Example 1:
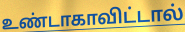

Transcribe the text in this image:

உண்டாகாவிட்டால்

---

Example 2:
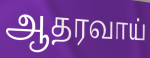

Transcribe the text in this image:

ஆதரவாய்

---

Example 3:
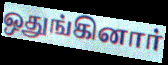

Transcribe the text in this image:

ஒதுங்கினார்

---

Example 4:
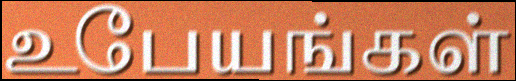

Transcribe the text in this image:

உபேயங்கள்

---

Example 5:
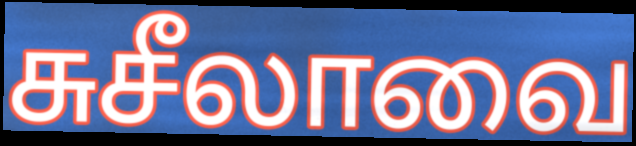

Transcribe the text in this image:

சுசீலாவை